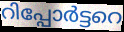
റിപ്പോർട്ടറെ